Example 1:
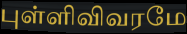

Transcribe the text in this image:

புள்ளிவிவரமே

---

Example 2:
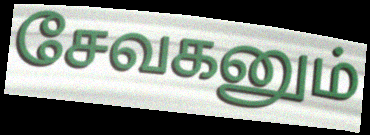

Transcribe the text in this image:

சேவகனும்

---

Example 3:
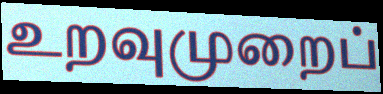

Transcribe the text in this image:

உறவுமுறைப்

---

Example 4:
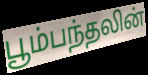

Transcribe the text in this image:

பூம்பந்தலின்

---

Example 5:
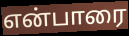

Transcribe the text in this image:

என்பாரை